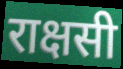
राक्षसी